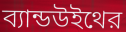
ব্যান্ডউইথের